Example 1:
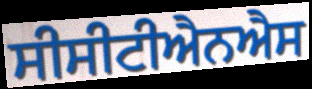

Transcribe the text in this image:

ਸੀਸੀਟੀਐਨਐਸ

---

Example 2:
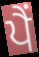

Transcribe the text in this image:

ਪੈਂ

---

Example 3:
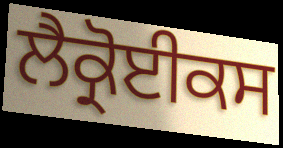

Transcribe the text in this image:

ਲੈਕ੍ਰੋਈਕਸ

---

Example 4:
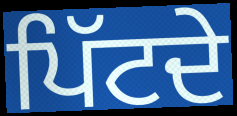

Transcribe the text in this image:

ਪਿੱਟਦੇ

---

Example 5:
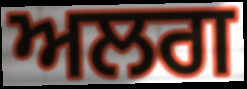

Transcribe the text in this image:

ਅਲਗ